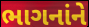
ભાગનાંને